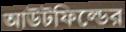
আউটফিল্ডের